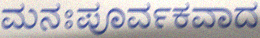
ಮನಃಪೂರ್ವಕವಾದ